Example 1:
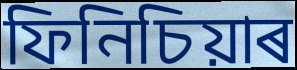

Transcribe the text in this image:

ফিনিচিয়াৰ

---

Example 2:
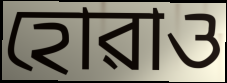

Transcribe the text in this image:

হোৱাও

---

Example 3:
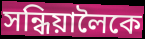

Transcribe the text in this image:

সন্ধিয়ালৈকে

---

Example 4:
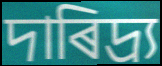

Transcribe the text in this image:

দাৰিদ্ৰ্য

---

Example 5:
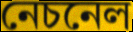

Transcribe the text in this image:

নেচনেল